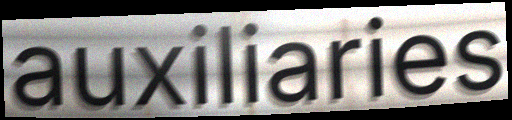
auxiliaries